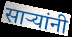
साऱ्यांनी